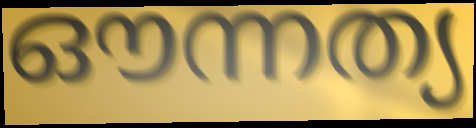
ഔന്നത്യ